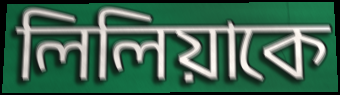
লিলিয়াকে